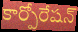
కార్పోరేషన్